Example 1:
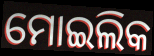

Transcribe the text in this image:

ମୋଇଲିକ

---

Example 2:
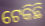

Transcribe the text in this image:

ଟେକିଛି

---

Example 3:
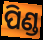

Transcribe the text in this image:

ପିଣ୍ଡ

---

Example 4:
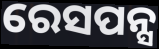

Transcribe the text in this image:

ରେସପନ୍ସ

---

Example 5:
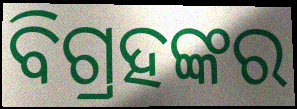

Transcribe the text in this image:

ବିଗ୍ରହଙ୍କର